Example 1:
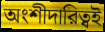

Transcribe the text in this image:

অংশীদারিত্বই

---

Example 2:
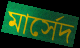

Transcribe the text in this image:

মার্সেদ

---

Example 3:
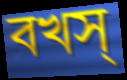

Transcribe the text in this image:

বখস্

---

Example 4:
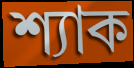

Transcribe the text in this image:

শ্যাক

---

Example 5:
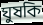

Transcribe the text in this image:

ঘুষকি